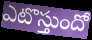
ఎటొస్తుందో